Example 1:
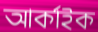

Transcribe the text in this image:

আর্কাইক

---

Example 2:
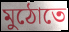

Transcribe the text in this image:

মুঠোতে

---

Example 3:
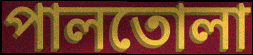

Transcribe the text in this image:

পালতোলা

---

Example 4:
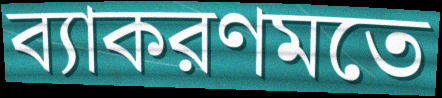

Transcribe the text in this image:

ব্যাকরণমতে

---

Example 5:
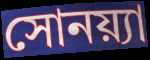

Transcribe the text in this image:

সোনয়্যা